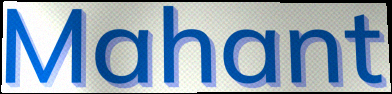
Mahant